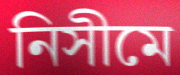
নিসীমে